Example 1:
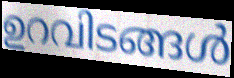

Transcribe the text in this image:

ഉറവിടങ്ങൾ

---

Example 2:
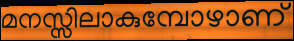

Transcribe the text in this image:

മനസ്സിലാകുമ്പോഴാണ്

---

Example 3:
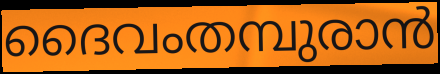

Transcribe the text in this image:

ദൈവംതമ്പുരാൻ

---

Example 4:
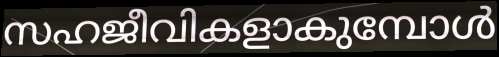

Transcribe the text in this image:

സഹജീവികളാകുമ്പോൾ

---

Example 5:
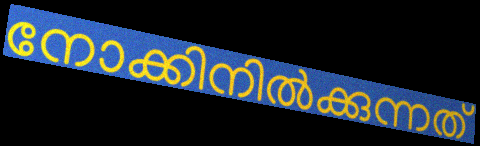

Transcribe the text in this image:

നോക്കിനിൽക്കുന്നത്